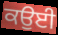
ਕਉਈ